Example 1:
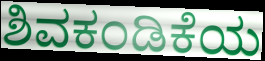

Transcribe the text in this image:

ಶಿವಕಂಡಿಕೆಯ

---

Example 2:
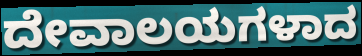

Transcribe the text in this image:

ದೇವಾಲಯಗಳಾದ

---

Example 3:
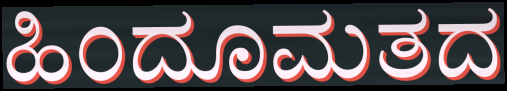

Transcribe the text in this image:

ಹಿಂದೂಮತದ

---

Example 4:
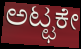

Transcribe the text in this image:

ಅಟ್ಟಕೇ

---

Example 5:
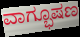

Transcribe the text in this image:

ವಾಗ್ಭೂಷಣ